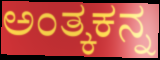
ಅಂತ್ಕಕನ್ನ